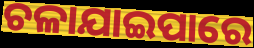
ଚଳାଯାଇପାରେ